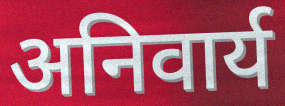
अनिवार्य